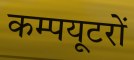
कम्पयूटरों